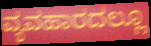
ವ್ಯವಹಾರದಲ್ಲೂ